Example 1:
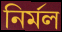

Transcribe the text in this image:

নিৰ্মল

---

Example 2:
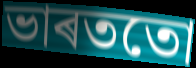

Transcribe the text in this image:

ভাৰততো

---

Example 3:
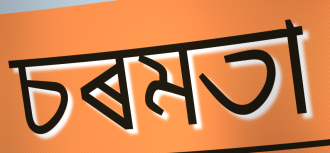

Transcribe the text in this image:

চৰমতা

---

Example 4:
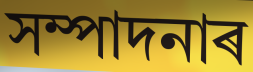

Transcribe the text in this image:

সম্পাদনাৰ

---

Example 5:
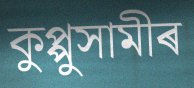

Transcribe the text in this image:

কুপ্পুসামীৰ